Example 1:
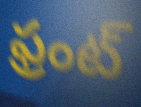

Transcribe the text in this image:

ఫ్రంట్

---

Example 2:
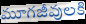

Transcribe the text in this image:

మూగజీవులకి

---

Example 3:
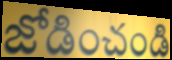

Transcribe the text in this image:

జోడించండి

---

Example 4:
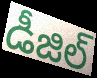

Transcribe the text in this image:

డీజిల్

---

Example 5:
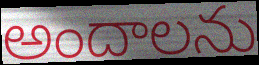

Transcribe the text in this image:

అందాలను